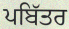
ਪਬਿੱਤਰ